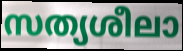
സത്യശീലാ